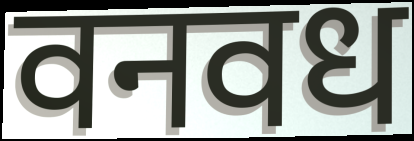
वनवध